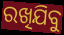
ରଖିଯିବୁ